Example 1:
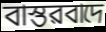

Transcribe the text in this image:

বাস্তৱবাদে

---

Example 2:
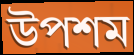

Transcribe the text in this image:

উপশম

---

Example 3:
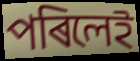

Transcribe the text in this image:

পৰিলেই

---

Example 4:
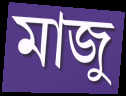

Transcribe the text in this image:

মাজু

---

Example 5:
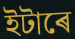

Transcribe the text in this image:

ইটাৰে